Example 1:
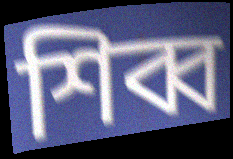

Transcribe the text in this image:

শিব্ব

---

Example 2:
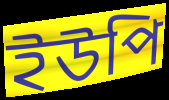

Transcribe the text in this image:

ইউপি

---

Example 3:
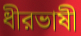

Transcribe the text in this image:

ধীরভাষী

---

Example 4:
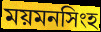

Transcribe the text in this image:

ময়মনসিংহ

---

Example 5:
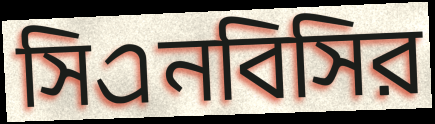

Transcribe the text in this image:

সিএনবিসির